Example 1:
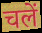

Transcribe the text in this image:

चलें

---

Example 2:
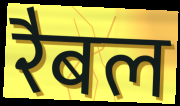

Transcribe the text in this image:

रैबल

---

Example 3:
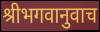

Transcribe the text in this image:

श्रीभगवानुवाच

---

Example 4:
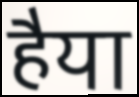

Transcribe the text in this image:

हैया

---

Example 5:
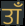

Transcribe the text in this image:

उाँ